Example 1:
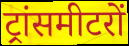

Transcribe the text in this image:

ट्रांसमीटरों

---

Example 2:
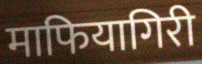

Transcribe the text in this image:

माफियागिरी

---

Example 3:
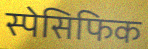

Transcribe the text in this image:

स्पेसिफिक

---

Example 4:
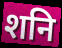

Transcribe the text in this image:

शनि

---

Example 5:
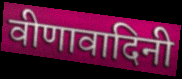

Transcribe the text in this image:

वीणावादिनी